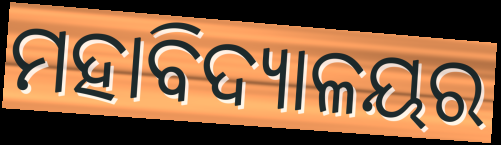
ମହାବିଦ୍ୟାଳୟର